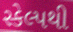
સ્કેલ્પથી